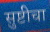
सुष्टीचा